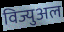
विज्युअल